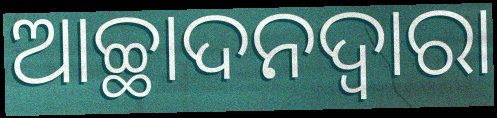
ଆଚ୍ଛାଦନଦ୍ୱାରା